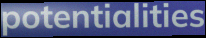
potentialities